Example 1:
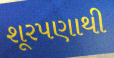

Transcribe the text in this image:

શૂરપણાથી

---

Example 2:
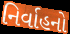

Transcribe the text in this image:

નિર્વાહનો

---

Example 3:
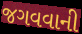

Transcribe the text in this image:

જગવવાની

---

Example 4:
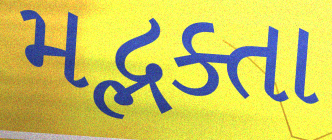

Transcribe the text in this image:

મદ્ભક્તા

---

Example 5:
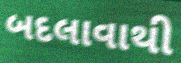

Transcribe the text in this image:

બદલાવાથી